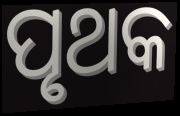
ପୃଥକ